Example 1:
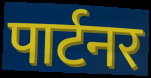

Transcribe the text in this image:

पार्टनर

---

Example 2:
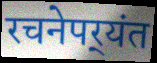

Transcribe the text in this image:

रचनेपर्यंत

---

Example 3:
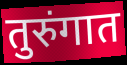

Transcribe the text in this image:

तुरुंगात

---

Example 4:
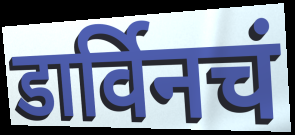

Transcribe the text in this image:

डार्विनचं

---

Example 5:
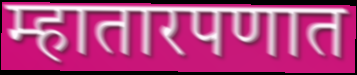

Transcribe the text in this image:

म्हातारपणात